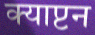
क्याप्टन